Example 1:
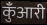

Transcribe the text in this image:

कुँआरी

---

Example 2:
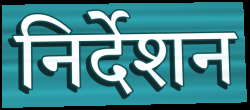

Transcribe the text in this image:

निर्देशन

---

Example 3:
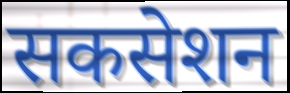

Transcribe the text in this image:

सकसेशन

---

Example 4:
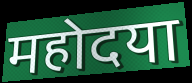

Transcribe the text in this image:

महोदया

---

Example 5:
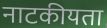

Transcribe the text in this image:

नाटकीयता